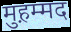
मुह़म्मद